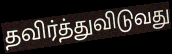
தவிர்த்துவிடுவது